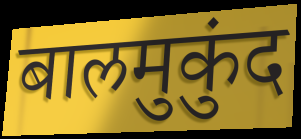
बालमुकुंद